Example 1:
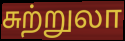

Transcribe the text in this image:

சுற்றுலா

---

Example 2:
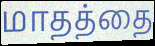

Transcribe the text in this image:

மாதத்தை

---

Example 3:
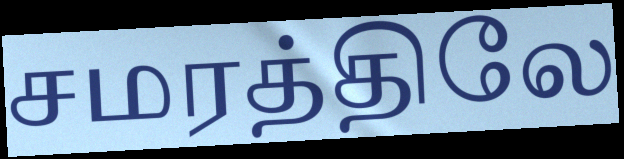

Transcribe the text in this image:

சமரத்திலே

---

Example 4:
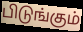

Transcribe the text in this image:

பிடுங்கும்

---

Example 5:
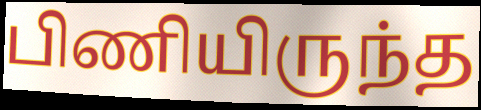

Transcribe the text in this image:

பிணியிருந்த